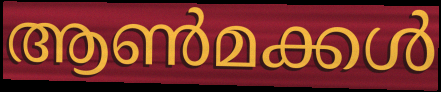
ആൺമക്കൾ